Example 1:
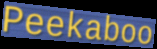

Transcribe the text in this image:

Peekaboo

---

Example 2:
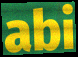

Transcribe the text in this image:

abi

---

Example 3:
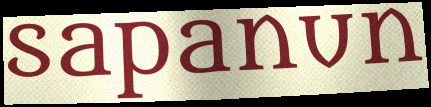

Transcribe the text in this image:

sapanun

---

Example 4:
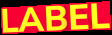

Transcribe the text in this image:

LABEL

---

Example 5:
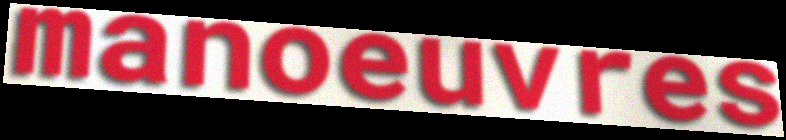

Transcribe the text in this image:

manoeuvres